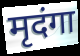
मृदंगा